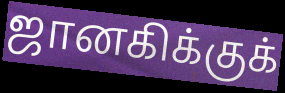
ஜானகிக்குக்